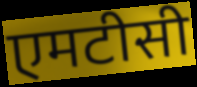
एमटीसी